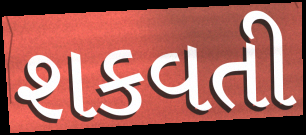
શકવતી